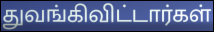
துவங்கிவிட்டார்கள்